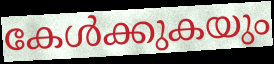
കേൾക്കുകയും